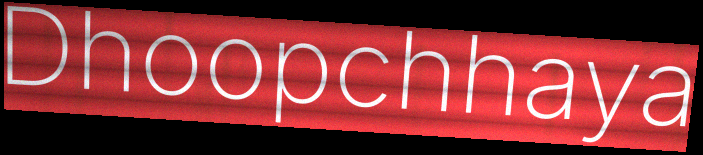
Dhoopchhaya